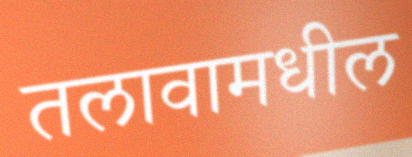
तलावामधील